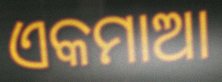
ଏକମାଆ